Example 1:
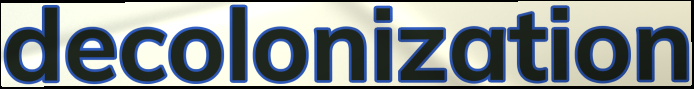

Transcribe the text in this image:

decolonization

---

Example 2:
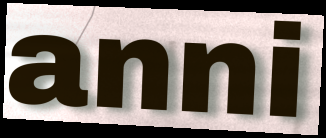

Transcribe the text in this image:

anni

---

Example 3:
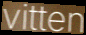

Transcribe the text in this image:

vitten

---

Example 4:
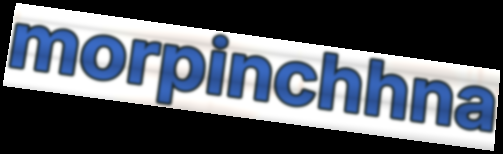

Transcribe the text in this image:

morpinchhna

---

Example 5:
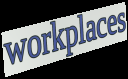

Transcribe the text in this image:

workplaces